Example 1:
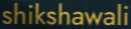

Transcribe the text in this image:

shikshawali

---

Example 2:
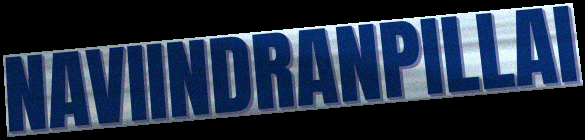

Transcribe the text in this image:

NAVIINDRANPILLAI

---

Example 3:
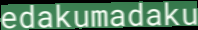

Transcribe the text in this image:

edakumadaku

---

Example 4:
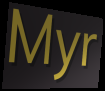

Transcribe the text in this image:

Myr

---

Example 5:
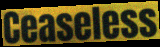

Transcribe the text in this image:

Ceaseless